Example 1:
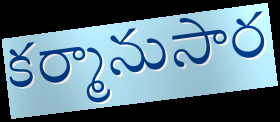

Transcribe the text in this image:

కర్మానుసార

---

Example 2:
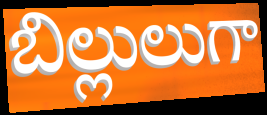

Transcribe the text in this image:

బిల్లులుగా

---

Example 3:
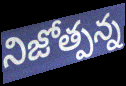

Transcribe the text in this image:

నిజోత్పన్న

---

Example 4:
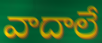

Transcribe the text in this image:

వాదాలే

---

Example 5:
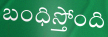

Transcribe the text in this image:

బంధిస్తోంది